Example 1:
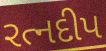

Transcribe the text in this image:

રત્નદીપ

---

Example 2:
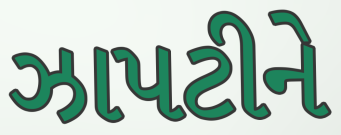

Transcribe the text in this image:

ઝાપટીને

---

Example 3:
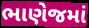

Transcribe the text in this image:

ભાણેજમાં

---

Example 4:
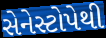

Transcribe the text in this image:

સેનેસ્ટોપેથી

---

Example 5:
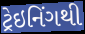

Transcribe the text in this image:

ટ્રેઇનિંગથી